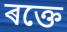
ৰক্তে